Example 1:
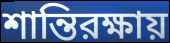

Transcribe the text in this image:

শান্তিরক্ষায়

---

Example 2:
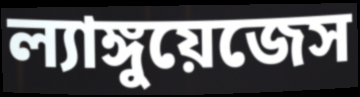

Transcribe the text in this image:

ল্যাঙ্গুয়েজেস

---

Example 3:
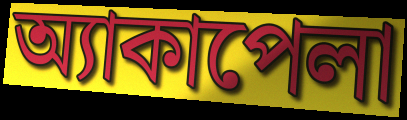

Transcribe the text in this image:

অ্যাকাপেলা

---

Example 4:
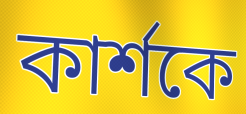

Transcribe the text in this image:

কার্শকে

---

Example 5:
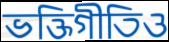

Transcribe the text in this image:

ভক্তিগীতিও